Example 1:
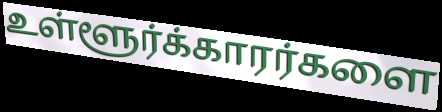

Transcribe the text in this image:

உள்ளூர்க்காரர்களை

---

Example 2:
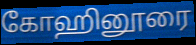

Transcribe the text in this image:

கோஹினூரை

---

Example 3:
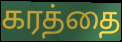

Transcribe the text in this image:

கரத்தை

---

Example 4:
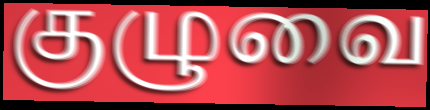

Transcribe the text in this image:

குழுவை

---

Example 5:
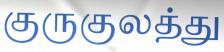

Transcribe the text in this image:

குருகுலத்து